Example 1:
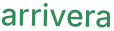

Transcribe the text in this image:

arrivera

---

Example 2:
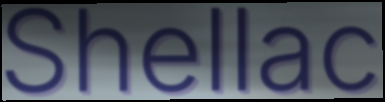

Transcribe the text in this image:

Shellac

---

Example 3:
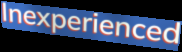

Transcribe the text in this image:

Inexperienced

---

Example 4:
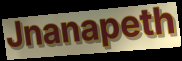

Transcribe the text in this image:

Jnanapeth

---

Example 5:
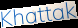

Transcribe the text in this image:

Khattak